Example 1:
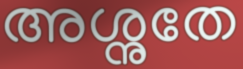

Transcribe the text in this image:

അശ്നുതേ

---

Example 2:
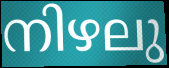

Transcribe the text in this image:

നിഴലു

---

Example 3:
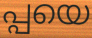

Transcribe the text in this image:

പ്പയെ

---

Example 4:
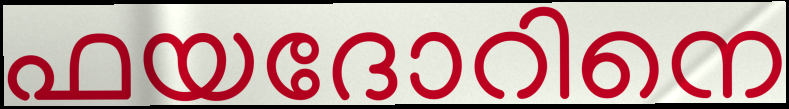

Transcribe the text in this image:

ഫയദോറിനെ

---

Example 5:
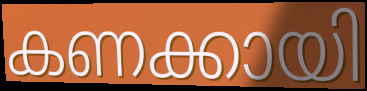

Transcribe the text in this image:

കണക്കായി